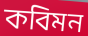
কবিমন